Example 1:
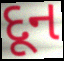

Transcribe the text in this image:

દૂન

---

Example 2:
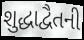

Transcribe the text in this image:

શુદ્ધાદ્વૈતની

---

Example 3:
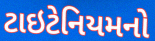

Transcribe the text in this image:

ટાઇટેનિયમનો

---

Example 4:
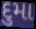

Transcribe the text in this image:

દુમા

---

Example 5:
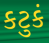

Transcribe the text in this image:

કટુકં